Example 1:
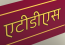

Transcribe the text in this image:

एटीडीएस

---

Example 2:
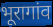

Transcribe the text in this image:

भूरागांव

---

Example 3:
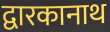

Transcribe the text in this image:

द्वारकानाथ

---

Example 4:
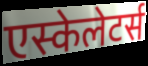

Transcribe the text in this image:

एस्केलेटर्स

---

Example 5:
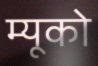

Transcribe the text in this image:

म्यूको